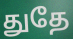
துதே